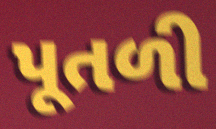
પૂતળી